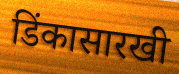
डिंकासारखी